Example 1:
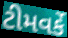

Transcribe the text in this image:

ટીમવર્કે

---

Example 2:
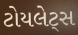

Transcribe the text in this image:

ટોયલેટ્સ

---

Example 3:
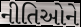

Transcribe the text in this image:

નીતિઓને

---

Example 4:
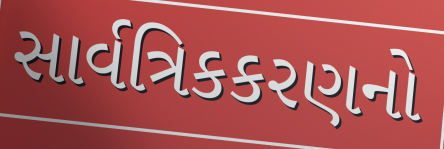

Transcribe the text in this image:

સાર્વત્રિકકરણનો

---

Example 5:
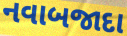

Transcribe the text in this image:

નવાબજાદા